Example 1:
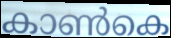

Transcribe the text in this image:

കാൺകെ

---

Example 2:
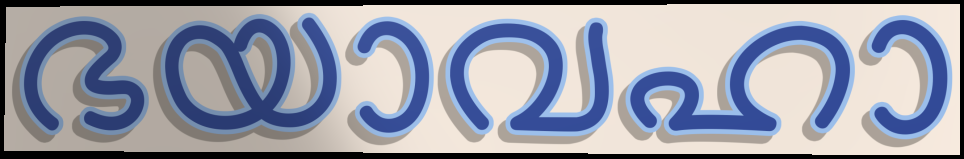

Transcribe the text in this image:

ഭയാവഹാ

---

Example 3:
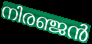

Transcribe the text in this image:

നിരഞ്ജൻ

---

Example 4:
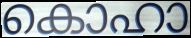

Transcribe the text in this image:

കൊഹാ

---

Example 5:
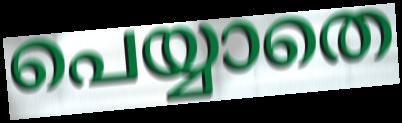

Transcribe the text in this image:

പെയ്യാതെ